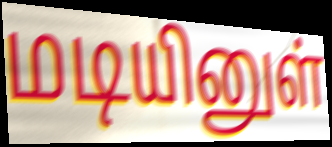
மடியினுள்